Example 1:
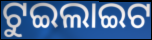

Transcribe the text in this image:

ଟୁଇଲାଇଟ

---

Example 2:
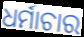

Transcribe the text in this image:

ଧର୍ମାଚାର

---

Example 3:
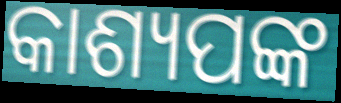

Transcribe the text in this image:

କାଶ୍ୟପଙ୍କ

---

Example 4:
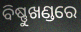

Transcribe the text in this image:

ବିଷ୍ଣୁଖଣ୍ଡରେ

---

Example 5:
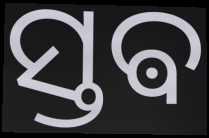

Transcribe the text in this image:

ସ୍ତଵ